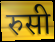
रुसी